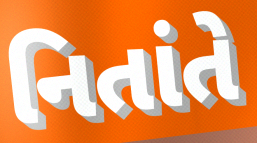
નિતાંતે